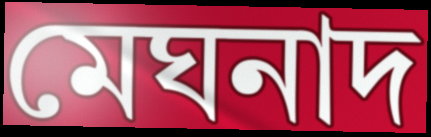
মেঘনাদ